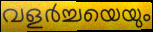
വളർച്ചയെയും